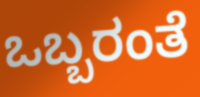
ಒಬ್ಬರಂತೆ